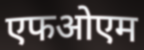
एफओएम